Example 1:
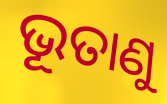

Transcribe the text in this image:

ଭୂତାଣୁ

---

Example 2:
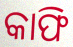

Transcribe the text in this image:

କାଫି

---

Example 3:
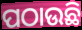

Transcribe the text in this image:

ପଠାଉଛି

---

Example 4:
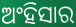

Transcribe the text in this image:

ଅଂହିସାର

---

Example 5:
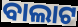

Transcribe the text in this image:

ବାଲାଟ